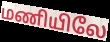
மணியிலே